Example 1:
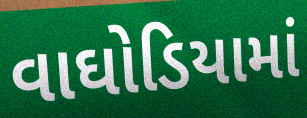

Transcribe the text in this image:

વાઘોડિયામાં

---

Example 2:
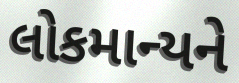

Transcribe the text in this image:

લોકમાન્યને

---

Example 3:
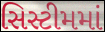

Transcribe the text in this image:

સિસ્ટીમમાં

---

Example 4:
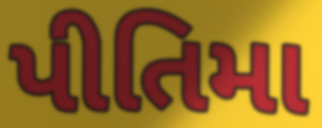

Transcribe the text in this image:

પીતિમા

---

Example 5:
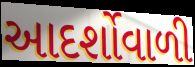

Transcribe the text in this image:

આદર્શોવાળી